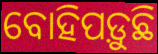
ବୋହିପଡ଼ୁଛି